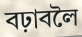
বঢ়াবলৈ